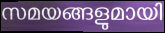
സമയങ്ങളുമായി